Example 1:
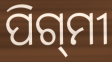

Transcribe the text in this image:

ପିଗ୍‌ମୀ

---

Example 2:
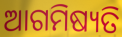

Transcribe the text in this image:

ଆଗମିଷ୍ୟତି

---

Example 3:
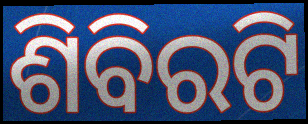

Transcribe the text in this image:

ଶିବିରଟି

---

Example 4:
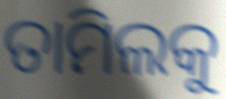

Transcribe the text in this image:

ତାମିଲକୁ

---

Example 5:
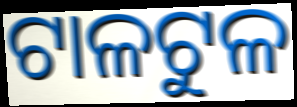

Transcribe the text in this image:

ଟାଳଟୁଳ